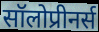
सॉलोप्रीनर्स